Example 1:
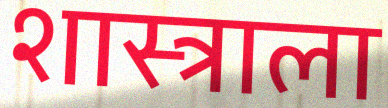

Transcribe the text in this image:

शास्त्राला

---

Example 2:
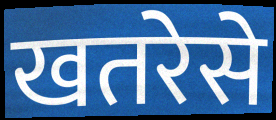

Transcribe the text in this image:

खतरेसे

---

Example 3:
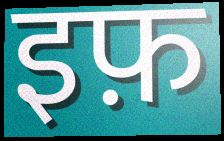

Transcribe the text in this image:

इफ़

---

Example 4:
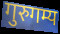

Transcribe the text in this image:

गुरुगम्य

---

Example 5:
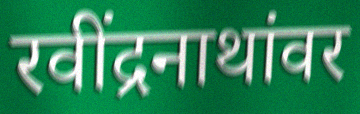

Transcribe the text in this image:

रवींद्रनाथांवर